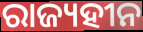
ରାଜ୍ୟହୀନ